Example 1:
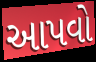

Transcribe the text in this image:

આપવો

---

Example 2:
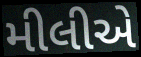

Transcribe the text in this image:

મીલીએ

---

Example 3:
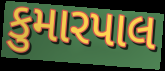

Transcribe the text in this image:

કુમારપાલ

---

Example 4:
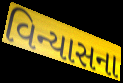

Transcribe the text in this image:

વિન્યાસના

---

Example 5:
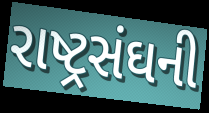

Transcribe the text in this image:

રાષ્ટ્રસંઘની